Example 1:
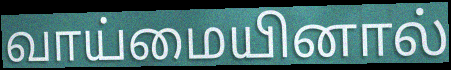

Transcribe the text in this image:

வாய்மையினால்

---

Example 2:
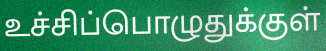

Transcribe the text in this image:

உச்சிப்பொழுதுக்குள்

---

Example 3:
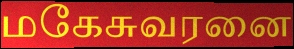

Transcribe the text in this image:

மகேசுவரனை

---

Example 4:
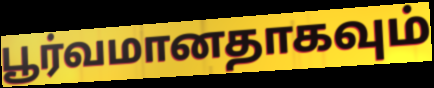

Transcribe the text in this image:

பூர்வமானதாகவும்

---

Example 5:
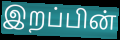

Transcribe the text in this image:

இறப்பின்